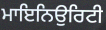
ਮਾਇਨਿਉਰਿਟੀ